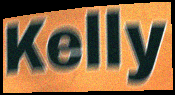
Kelly